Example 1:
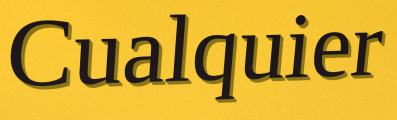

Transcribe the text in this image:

Cualquier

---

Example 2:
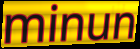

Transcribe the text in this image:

minun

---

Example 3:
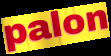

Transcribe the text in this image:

palon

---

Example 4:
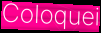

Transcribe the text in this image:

Coloquei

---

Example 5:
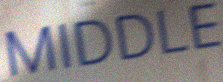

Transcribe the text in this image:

MIDDLE